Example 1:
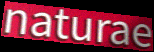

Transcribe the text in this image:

naturae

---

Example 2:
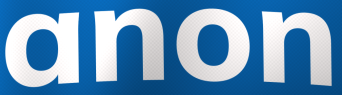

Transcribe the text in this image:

anon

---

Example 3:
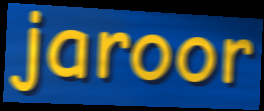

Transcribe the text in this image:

jaroor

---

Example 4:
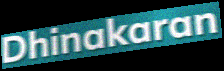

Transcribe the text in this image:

Dhinakaran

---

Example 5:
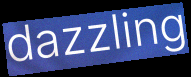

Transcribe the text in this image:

dazzling